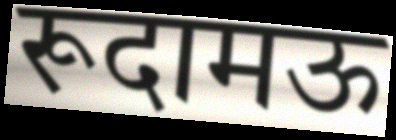
रूदामऊ